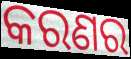
କରଣର